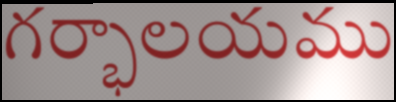
గర్భాలయము